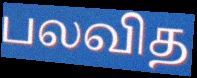
பலவித